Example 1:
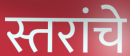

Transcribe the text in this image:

स्तरांचे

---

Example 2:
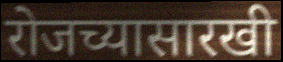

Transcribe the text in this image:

रोजच्यासारखी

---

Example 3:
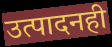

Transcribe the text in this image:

उत्पादनही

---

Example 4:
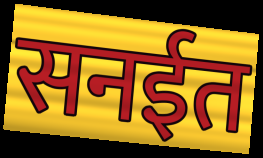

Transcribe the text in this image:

सनईत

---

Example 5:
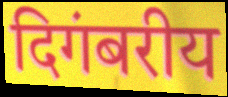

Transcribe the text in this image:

दिगंबरीय